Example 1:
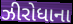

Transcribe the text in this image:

ઝીરોધાના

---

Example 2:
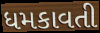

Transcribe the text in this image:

ધમકાવતી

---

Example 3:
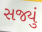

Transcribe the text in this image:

સજ્યું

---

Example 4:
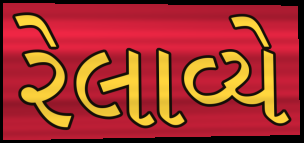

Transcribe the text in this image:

રેલાવ્યે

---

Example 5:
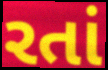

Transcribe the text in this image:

રતાં